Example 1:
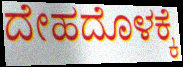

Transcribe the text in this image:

ದೇಹದೊಳಕ್ಕೆ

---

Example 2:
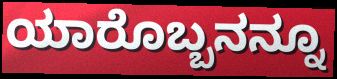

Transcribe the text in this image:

ಯಾರೊಬ್ಬನನ್ನೂ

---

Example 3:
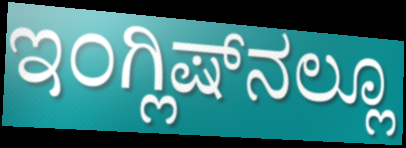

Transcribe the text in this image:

ಇಂಗ್ಲಿಷ್‌ನಲ್ಲೂ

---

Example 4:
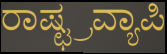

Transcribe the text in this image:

ರಾಷ್ಟ್ರವ್ಯಾಪಿ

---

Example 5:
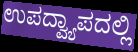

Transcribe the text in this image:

ಉಪದ್ವ್ಯಾಪದಲ್ಲಿ